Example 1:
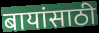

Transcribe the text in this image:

बायांसाठी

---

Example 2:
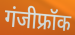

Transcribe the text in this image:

गंजीफ्रॉक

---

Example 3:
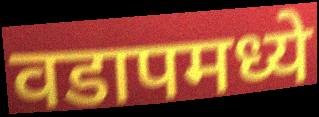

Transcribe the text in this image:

वडापमध्ये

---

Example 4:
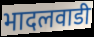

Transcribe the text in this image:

भादलवाडी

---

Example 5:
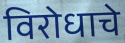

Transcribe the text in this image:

विरोधाचे